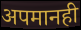
अपमानही